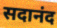
सदानंद